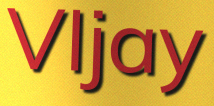
VIjay